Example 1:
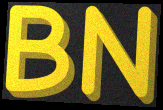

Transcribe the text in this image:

BN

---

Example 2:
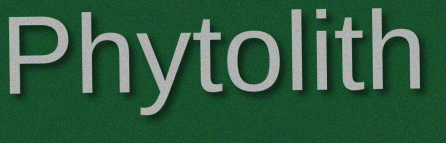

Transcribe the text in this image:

Phytolith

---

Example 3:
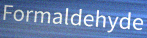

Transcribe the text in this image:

Formaldehyde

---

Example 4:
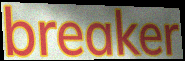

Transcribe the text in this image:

breaker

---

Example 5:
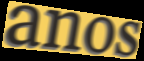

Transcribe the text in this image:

anos